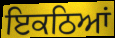
ਇਕਠਿਆਂ